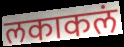
लकाकलं